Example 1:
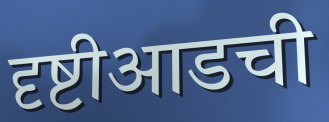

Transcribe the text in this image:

दृष्टीआडची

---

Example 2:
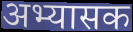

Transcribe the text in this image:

अभ्यासक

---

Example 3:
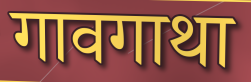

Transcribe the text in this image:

गावगाथा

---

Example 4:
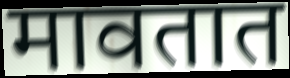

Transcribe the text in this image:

मावतात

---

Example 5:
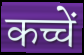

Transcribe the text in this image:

कच्चें